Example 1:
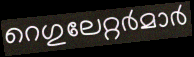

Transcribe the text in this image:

റെഗുലേറ്റർമാർ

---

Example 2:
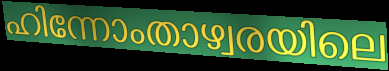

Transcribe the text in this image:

ഹിന്നോംതാഴ്വരയിലെ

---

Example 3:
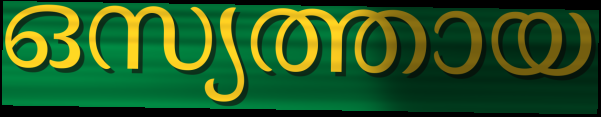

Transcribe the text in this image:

ഒസ്യത്തായ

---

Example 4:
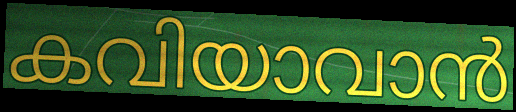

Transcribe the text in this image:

കവിയാവാൻ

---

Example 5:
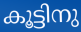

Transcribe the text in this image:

കൂട്ടിനു